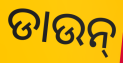
ଡାଉନ୍